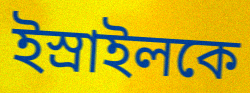
ইস্রাইলকে